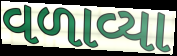
વળાવ્યા